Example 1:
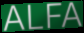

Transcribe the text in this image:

ALFA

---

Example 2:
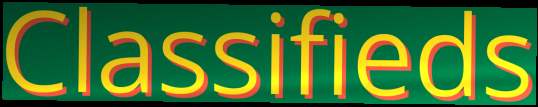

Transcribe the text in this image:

Classifieds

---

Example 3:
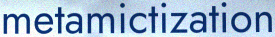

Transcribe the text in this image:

metamictization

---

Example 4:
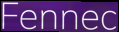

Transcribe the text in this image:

Fennec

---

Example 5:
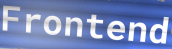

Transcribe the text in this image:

Frontend